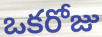
ఒకరోజు